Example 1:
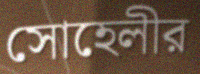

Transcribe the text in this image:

সোহেলীর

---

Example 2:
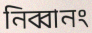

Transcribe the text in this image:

নিব্বানং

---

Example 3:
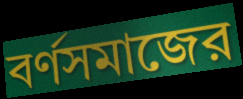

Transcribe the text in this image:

বর্ণসমাজের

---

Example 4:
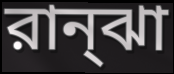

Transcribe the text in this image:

রান্ঝা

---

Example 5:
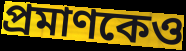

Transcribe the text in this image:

প্রমাণকেও